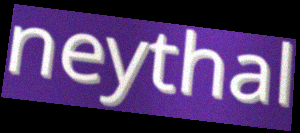
neythal